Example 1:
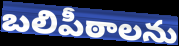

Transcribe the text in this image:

బలిపీఠాలను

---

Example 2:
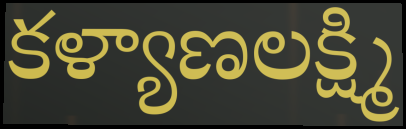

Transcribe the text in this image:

కళ్యాణలక్ష్మి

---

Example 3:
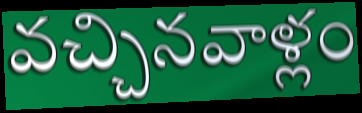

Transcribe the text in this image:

వచ్చినవాళ్లం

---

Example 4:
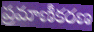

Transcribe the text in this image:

ప్రమాణీకరణ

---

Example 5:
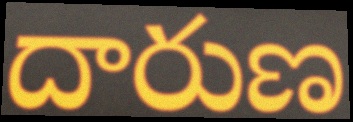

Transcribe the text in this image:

దారుణ